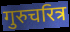
गुरुचरित्र